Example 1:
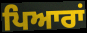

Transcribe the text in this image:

ਪਿਆਰਾਂ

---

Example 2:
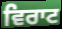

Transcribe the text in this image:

ਵਿਰਾਟ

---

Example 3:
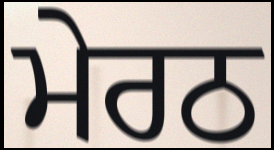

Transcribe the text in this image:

ਮੇਰਠ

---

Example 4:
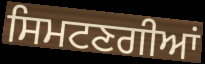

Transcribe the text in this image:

ਸਿਮਟਣਗੀਆਂ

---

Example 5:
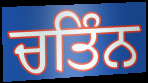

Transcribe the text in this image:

ਚਤਿੰਨ